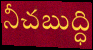
నీచబుద్ధి